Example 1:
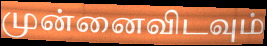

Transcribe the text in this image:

முன்னைவிடவும்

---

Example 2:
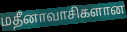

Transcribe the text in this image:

மதீனாவாசிகளான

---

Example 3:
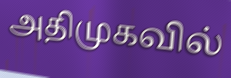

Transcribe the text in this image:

அதிமுகவில்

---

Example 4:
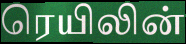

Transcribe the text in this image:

ரெயிலின்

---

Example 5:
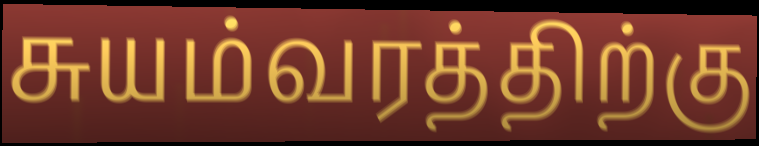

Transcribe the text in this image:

சுயம்வரத்திற்கு